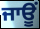
ਜਾਊਂ